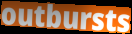
outbursts